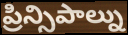
ప్రిన్సిపాల్ను